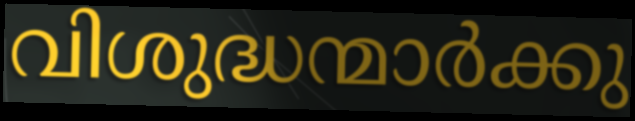
വിശുദ്ധന്മാർക്കു